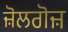
ਜ਼ੋਲਗੋਜ਼